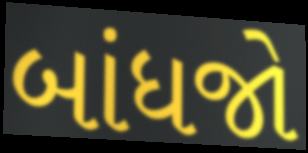
બાંધજો